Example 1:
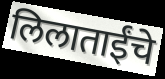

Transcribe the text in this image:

लिलाताईंचे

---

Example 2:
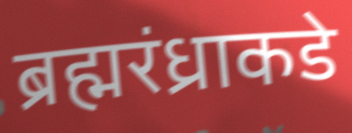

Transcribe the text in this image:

ब्रह्मरंध्राकडे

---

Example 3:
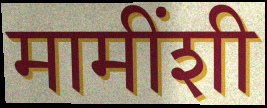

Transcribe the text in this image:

मामींशी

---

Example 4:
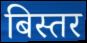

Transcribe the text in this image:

बिस्तर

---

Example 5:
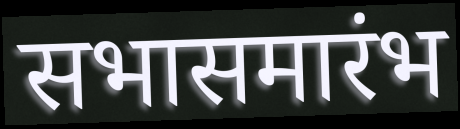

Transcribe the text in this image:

सभासमारंभ